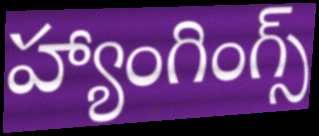
హ్యాంగింగ్స్